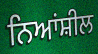
ਨਿਆਂਸ਼ੀਲ